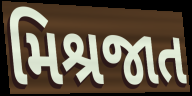
મિશ્રજાત